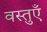
वस्तुएँ